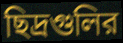
ছিদ্রগুলির